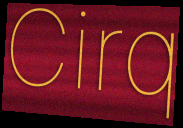
Cirq